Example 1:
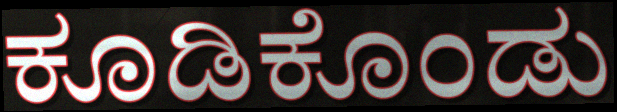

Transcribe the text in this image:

ಕೂಡಿಕೊಂಡು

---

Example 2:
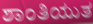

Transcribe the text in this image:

ಶಾಂತಿಯುತ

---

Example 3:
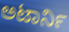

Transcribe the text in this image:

ಅಟಾರ್ನಿ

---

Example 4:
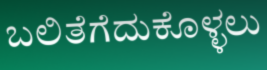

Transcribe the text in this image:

ಬಲಿತೆಗೆದುಕೊಳ್ಳಲು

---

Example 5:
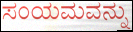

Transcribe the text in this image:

ಸಂಯಮವನ್ನು